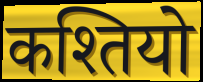
कश्तियो